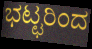
ಭಟ್ಟರಿಂದ